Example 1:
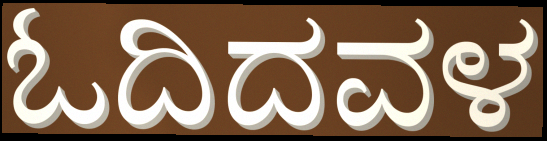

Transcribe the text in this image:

ಓದಿದವಳ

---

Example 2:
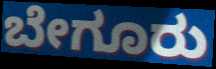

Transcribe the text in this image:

ಬೇಗೂರು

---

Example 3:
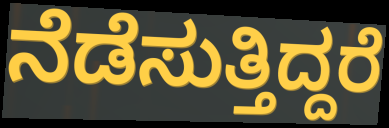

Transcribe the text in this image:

ನೆಡೆಸುತ್ತಿದ್ದರೆ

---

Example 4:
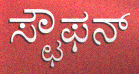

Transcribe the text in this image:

ಸ್ಟೌಫನ್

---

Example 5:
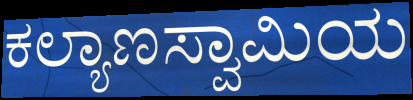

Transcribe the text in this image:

ಕಲ್ಯಾಣಸ್ವಾಮಿಯ